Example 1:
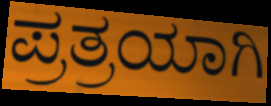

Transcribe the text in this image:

ಪ್ರತ್ರಯಾಗಿ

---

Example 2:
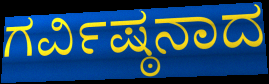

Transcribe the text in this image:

ಗರ್ವಿಷ್ಠನಾದ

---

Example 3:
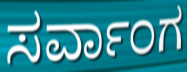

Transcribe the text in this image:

ಸರ್ವಾಂಗ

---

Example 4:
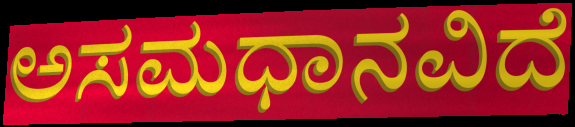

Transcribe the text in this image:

ಅಸಮಧಾನವಿದೆ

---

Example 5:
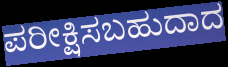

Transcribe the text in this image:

ಪರೀಕ್ಷಿಸಬಹುದಾದ